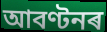
আবণ্টনৰ